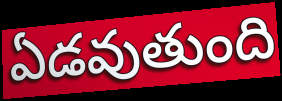
ఏడవుతుంది